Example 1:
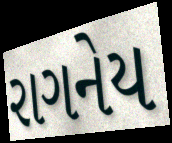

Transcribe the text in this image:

રાગનેય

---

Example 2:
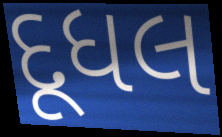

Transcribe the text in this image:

દૂધલ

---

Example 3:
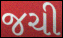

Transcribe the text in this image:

જચી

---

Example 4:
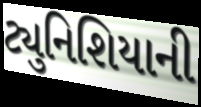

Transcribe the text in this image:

ટ્યુનિશિયાની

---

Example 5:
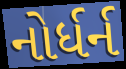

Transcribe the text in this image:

નોર્ધર્ન